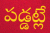
పడ్డట్లే